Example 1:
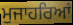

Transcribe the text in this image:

ਮੁਜਾਹਰਿਆਂ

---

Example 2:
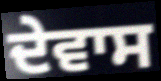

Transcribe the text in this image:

ਦੇਵਾਸ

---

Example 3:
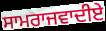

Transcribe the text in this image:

ਸਾਮਰਾਜਵਾਦੀਏ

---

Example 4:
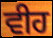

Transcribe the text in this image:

ਵੀਹ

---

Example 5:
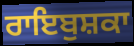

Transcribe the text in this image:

ਰਾਇਬੁਸ਼ਕਾ